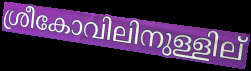
ശ്രീകോവിലിനുള്ളില്